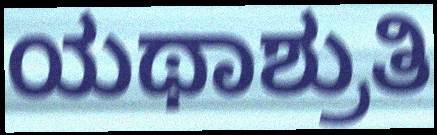
ಯಥಾಶ್ರುತಿ